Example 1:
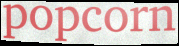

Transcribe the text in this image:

popcorn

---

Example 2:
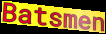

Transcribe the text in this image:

Batsmen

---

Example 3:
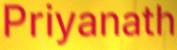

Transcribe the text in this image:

Priyanath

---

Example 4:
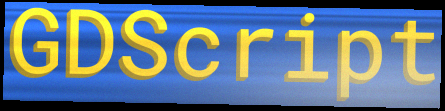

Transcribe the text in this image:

GDScript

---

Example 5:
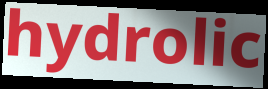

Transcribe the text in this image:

hydrolic